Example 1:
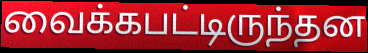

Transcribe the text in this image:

வைக்கபட்டிருந்தன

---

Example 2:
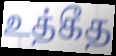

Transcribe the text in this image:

உத்கீத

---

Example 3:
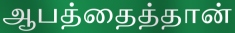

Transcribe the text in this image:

ஆபத்தைத்தான்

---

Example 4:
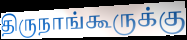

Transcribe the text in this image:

திருநாங்கூருக்கு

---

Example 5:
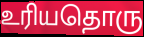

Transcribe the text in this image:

உரியதொரு